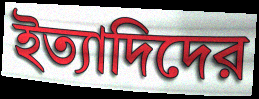
ইত্যাদিদের